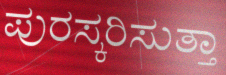
ಪುರಸ್ಕರಿಸುತ್ತಾ